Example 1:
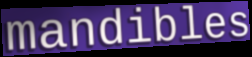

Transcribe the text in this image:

mandibles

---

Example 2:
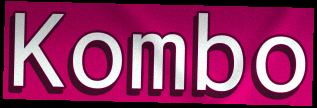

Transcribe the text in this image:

Kombo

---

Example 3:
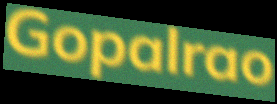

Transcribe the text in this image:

Gopalrao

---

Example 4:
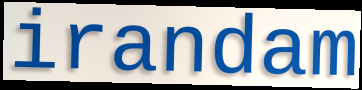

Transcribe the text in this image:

irandam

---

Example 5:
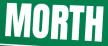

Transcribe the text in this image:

MORTH